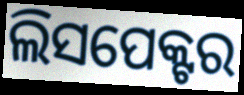
ଲିସପେକ୍ଟର